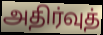
அதிர்வுத்